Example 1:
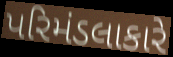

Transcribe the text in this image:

પરિમંડલાકારે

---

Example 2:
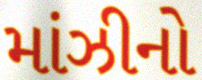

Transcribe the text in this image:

માંઝીનો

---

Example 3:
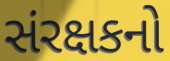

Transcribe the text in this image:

સંરક્ષકનો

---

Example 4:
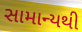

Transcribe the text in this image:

સામાન્યથી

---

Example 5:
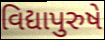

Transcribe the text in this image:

વિદ્યાપુરુષે